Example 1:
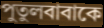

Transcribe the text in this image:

পুতুলবাবাকে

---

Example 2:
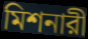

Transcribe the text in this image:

মিশনারী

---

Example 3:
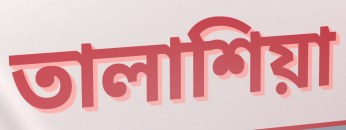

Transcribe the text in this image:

তালাশিয়া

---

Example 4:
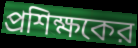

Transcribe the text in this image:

প্রশিক্ষকের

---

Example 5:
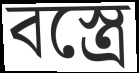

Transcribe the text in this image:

বস্ত্রে